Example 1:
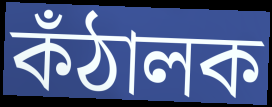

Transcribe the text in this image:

কঁঠালক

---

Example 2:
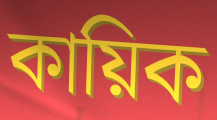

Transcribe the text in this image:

কায়িক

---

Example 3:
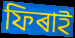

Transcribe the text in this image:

ফিৰাই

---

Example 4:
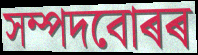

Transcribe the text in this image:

সম্পদবোৰৰ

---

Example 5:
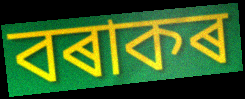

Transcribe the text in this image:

বৰাকৰ